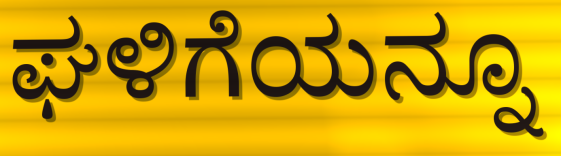
ಘಳಿಗೆಯನ್ನೂ